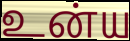
உன்ய